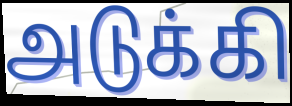
அடுக்கி